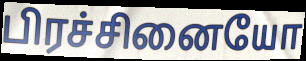
பிரச்சினையோ